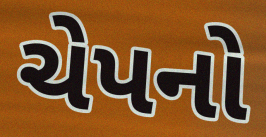
ચેપનો